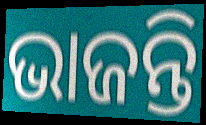
ଭାଜନ୍ତି